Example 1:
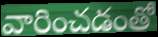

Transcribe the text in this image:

వారించడంతో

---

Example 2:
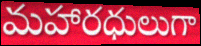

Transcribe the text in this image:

మహారధులుగా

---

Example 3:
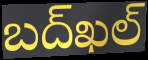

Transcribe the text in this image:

బద్‌ఖల్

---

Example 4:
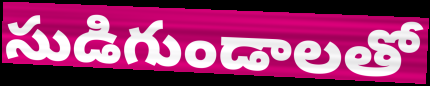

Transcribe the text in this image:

సుడిగుండాలతో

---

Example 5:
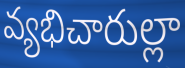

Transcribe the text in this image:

వ్యభిచారుల్లా